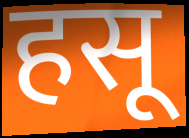
हसू